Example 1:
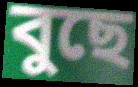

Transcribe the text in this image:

বুছে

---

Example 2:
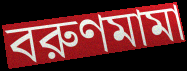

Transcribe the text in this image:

বরুণমামা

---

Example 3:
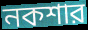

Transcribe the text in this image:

নকশার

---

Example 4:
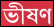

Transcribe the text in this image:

ভীষণ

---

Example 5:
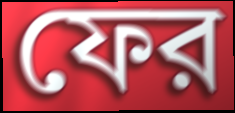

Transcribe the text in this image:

ফের